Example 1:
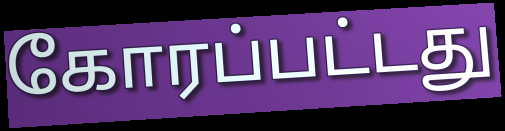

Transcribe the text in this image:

கோரப்பட்டது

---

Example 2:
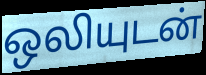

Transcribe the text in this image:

ஒலியுடன்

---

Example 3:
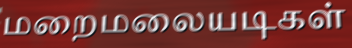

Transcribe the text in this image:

மறைமலையடிகள்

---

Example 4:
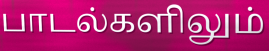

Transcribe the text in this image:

பாடல்களிலும்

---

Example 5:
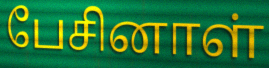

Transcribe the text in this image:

பேசினாள்